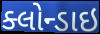
ક્લોન્ડાઇ